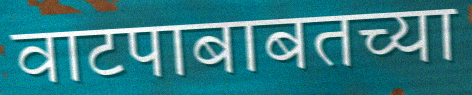
वाटपाबाबतच्या